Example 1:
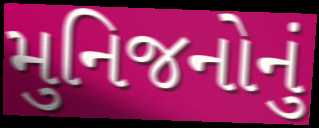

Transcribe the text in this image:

મુનિજનોનું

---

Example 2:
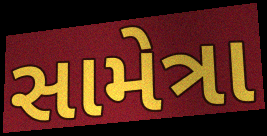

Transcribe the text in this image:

સામેત્રા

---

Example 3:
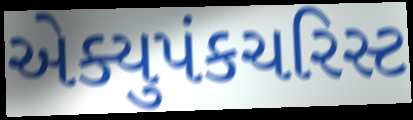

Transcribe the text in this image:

એક્યુપંકચરિસ્ટ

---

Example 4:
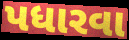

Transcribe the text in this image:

પધારવા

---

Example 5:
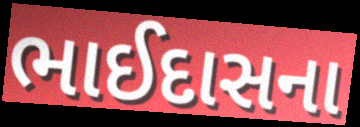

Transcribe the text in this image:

ભાઈદાસના